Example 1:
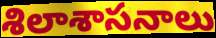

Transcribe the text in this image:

శిలాశాసనాలు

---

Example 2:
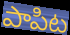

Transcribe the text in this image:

పాపిట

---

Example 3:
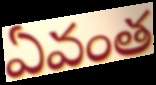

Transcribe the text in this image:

ఏవంత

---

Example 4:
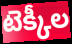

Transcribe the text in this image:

టెక్కీల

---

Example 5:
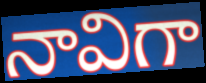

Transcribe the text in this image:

నావిగా